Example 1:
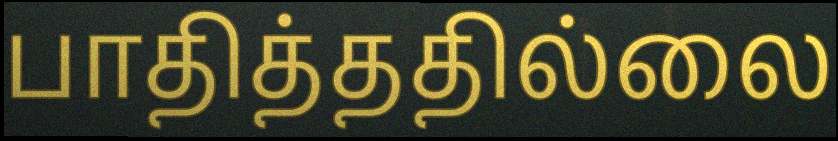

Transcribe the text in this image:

பாதித்ததில்லை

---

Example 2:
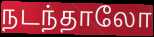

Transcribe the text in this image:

நடந்தாலோ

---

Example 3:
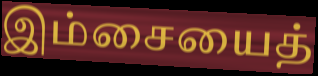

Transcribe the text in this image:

இம்சையைத்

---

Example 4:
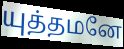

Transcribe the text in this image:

யுத்தமனே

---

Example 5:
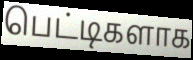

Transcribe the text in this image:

பெட்டிகளாக